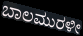
ಬಾಲಮುರಳೀ